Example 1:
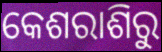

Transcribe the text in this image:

କେଶରାଶିରୁ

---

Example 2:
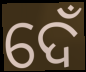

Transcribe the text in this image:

ଦେଁ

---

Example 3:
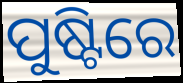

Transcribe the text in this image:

ପୁଷ୍ଟିରେ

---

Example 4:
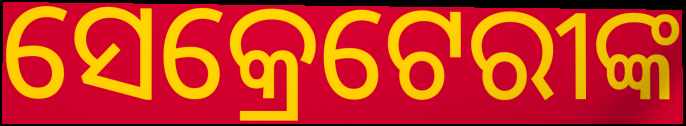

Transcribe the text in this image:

ସେକ୍ରେଟେରୀଙ୍କ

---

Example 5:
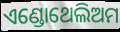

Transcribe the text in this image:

ଏଣ୍ଡୋଥେଲିଅମ